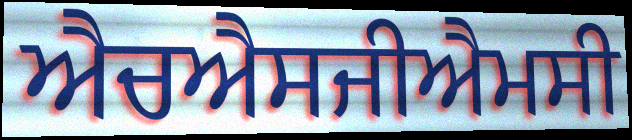
ਐਚਐਸਜੀਐਮਸੀ